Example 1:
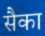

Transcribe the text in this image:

सैका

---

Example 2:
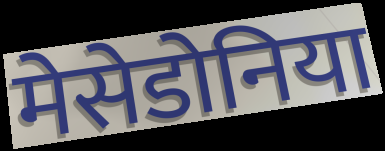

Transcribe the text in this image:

मेसेडोनिया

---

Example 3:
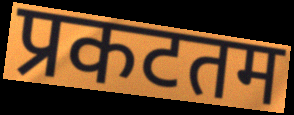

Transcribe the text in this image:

प्रकटतम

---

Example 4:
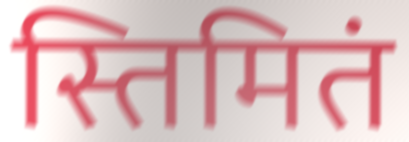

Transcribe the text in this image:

स्तिमितं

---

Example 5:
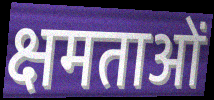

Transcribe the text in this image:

क्षमताओं